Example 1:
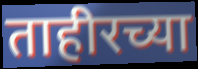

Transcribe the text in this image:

ताहीरच्या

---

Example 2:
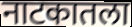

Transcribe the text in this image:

नाटकातला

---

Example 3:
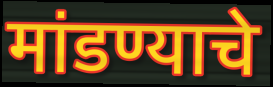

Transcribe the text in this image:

मांडण्याचे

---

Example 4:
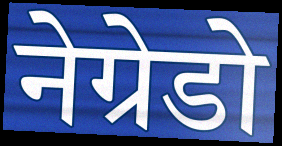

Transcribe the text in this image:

नेग्रेडो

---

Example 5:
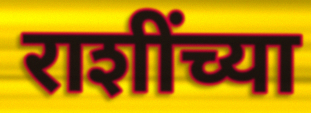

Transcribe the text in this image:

राशींच्या